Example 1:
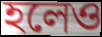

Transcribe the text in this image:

হলেও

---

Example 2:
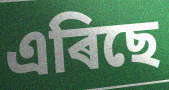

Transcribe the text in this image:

এৰিছে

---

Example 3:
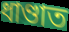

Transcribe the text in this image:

ধাণ্ডাত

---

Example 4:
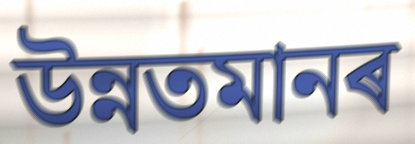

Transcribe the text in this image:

উন্নতমানৰ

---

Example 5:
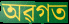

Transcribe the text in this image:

অৱগত